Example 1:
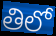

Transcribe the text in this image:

తిలో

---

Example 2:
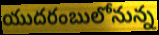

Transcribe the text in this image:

యుదరంబులోనున్న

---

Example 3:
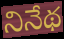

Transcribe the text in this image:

నినేథ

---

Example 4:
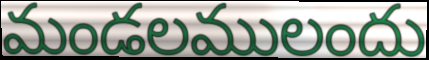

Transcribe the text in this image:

మండలములందు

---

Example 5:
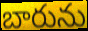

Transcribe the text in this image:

బారును